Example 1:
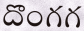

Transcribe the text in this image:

దొంగగ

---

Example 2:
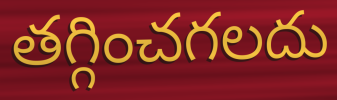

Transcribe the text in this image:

తగ్గించగలదు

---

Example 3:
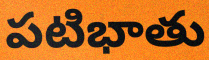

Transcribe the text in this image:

పటిభాతు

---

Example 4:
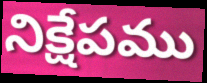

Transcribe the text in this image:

నిక్షేపము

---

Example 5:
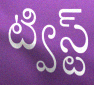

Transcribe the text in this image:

ట్విస్ట్